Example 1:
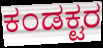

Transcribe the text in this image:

ಕಂಡಕ್ಟರ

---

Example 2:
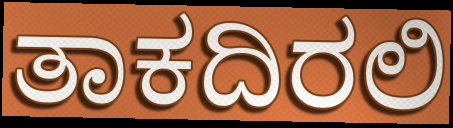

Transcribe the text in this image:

ತಾಕದಿರಲಿ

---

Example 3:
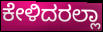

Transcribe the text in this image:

ಕೇಳಿದರಲ್ಲಾ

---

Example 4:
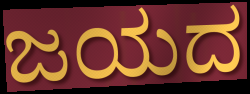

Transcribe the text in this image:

ಜಯದ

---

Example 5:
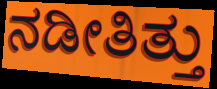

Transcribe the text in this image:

ನಡೀತಿತ್ತು